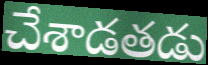
చేశాడతడు